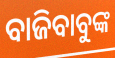
ବାଜିବାବୁଙ୍କ